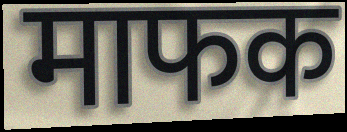
माफक